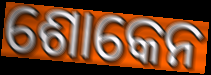
ଶୋକେନ